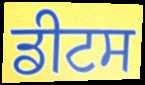
ਡੀਟਸ